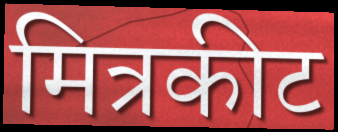
मित्रकीट